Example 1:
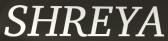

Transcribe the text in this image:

SHREYA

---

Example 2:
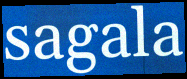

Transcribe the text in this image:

sagala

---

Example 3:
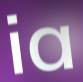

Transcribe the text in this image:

ia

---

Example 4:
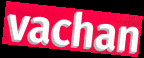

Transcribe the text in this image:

vachan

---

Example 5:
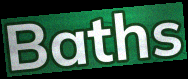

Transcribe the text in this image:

Baths